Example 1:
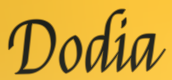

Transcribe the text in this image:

Dodia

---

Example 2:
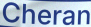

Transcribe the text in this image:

Cheran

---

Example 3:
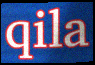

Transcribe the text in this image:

qila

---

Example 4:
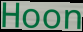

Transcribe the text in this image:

Hoon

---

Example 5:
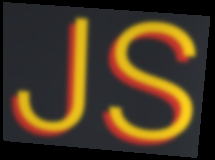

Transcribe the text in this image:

JS